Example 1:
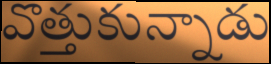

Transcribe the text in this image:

వొత్తుకున్నాడు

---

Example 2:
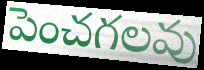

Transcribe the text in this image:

పెంచగలవు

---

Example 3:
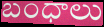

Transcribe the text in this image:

బంధాలు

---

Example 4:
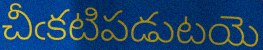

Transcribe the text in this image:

చీఁకటిపడుటయె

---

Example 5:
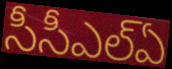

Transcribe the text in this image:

సీసీఎల్ఏ